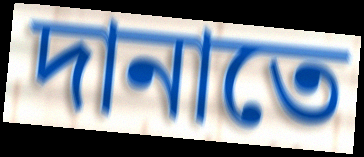
দানাতে